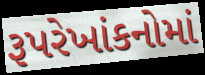
રૂપરેખાંકનોમાં